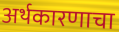
अर्थकारणाचा